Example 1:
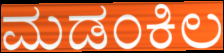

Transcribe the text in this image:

ಮಡಂಕಿಲ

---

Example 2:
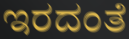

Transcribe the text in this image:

ಇರದಂತೆ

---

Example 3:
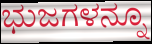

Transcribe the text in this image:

ಭುಜಗಳನ್ನೂ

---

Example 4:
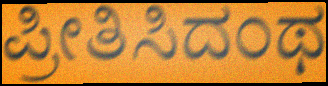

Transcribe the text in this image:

ಪ್ರೀತಿಸಿದಂಥ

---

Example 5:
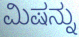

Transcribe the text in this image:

ಮಿಷನ್ನು